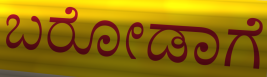
ಬರೋಡಾಗೆ